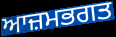
ਆਜ਼ਮਭਗਤ